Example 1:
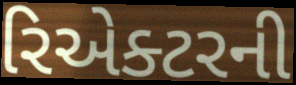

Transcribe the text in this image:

રિએક્ટરની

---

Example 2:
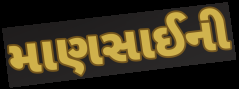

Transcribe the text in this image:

માણસાઈની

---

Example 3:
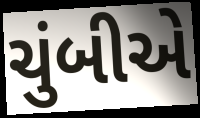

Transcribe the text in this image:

ચુંબીએ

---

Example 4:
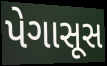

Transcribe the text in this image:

પેગાસૂસ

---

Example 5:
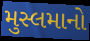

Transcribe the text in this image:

મુસ્લમાનો